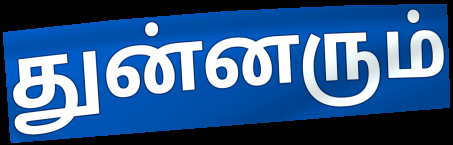
துன்னரும்